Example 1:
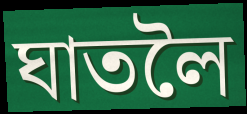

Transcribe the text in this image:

ঘাতলৈ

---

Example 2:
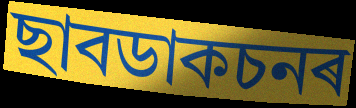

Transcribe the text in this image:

ছাবডাকচনৰ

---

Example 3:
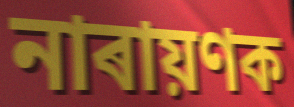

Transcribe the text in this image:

নাৰায়ণক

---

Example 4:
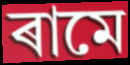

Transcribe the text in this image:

ৰামে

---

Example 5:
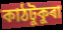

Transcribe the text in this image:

কাঠটুকুৰা